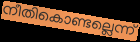
നീതികൊണ്ടല്ലെന്ന്